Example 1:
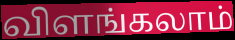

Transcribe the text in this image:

விளங்கலாம்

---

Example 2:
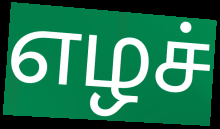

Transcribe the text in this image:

எழச்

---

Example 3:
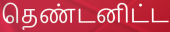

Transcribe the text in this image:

தெண்டனிட்ட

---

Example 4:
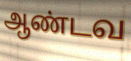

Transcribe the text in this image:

ஆண்டவ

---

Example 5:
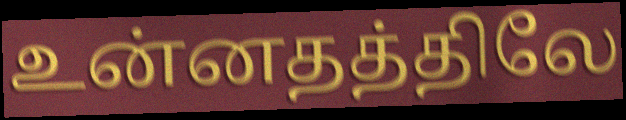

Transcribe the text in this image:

உன்னதத்திலே